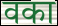
वका